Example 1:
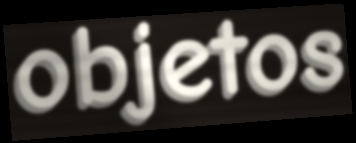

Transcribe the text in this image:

objetos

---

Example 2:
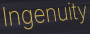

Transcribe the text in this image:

Ingenuity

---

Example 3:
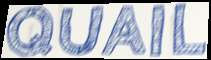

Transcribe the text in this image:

QUAIL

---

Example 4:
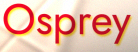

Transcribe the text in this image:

Osprey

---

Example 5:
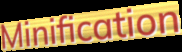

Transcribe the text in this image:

Minification